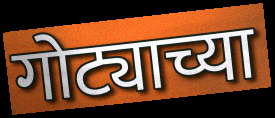
गोट्याच्या